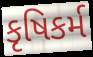
કૃષિકર્મ